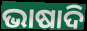
ଭାଷାଦି